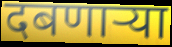
दबणाऱ्या